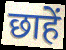
छाहें